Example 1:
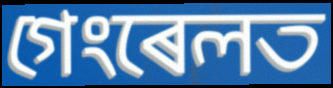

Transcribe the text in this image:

গেংৰেলত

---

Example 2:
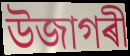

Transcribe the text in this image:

উজাগৰী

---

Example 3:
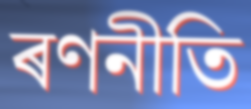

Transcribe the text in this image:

ৰণনীতি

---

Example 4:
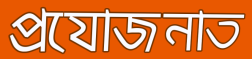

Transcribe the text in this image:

প্ৰযোজনাত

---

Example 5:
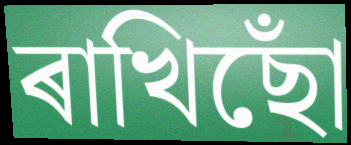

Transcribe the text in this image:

ৰাখিছোঁ